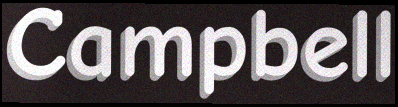
Campbell